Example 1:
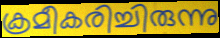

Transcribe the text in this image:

ക്രമീകരിച്ചിരുന്നു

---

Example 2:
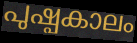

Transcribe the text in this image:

പുഷ്പകാലം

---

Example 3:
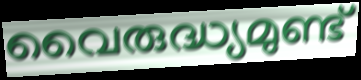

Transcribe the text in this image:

വൈരുദ്ധ്യമുണ്ട്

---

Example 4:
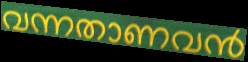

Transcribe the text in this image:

വന്നതാണവൻ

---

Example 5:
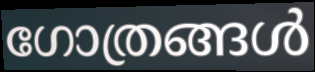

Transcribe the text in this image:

ഗോത്രങ്ങൾ